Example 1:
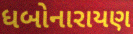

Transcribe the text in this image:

ધબોનારાયણ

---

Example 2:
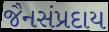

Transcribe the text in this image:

જૈનસંપ્રદાય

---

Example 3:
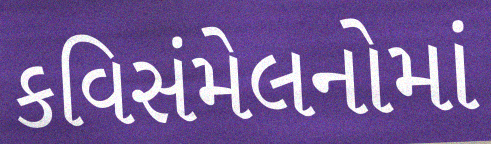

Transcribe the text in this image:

કવિસંમેલનોમાં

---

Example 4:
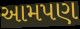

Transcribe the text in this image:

આમપણ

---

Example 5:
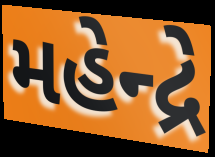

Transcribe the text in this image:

મહેન્દ્રે